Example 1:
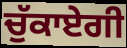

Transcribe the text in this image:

ਚੁੱਕਾਏਗੀ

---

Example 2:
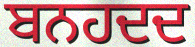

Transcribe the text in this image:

ਬਨਹਦਦ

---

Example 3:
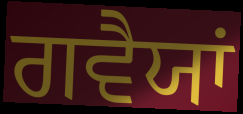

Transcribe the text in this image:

ਗਵੈਯਾਂ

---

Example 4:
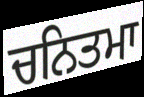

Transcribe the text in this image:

ਚਨਿਤਮਾ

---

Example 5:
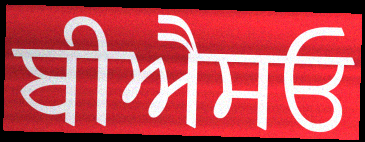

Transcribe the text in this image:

ਬੀਐਸਓ